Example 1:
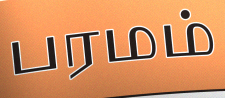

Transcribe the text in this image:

பரமம்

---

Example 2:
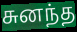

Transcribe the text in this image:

சுனந்த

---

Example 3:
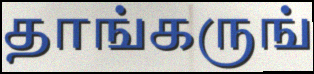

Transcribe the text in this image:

தாங்கருங்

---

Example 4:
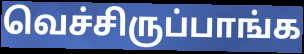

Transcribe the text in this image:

வெச்சிருப்பாங்க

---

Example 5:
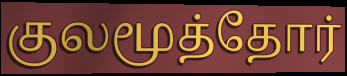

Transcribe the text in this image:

குலமூத்தோர்